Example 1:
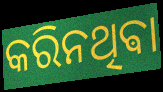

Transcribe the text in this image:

କରିନଥିଵା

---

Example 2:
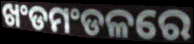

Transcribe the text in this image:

ଖଂଡମଂଡଳରେ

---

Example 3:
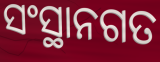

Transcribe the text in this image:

ସଂସ୍ଥାନଗତ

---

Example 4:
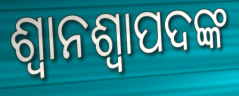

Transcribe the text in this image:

ଶ୍ୱାନଶ୍ୱାପଦଙ୍କ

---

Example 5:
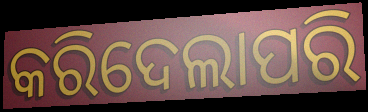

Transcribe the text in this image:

କରିଦେଲାପରି